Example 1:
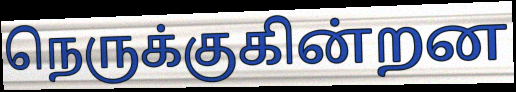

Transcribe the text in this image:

நெருக்குகின்றன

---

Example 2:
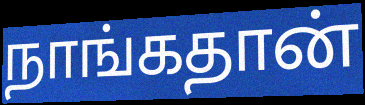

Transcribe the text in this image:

நாங்கதான்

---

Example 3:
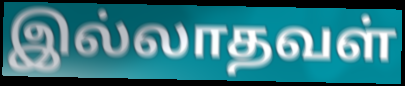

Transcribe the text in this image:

இல்லாதவள்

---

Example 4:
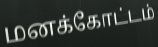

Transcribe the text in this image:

மனக்கோட்டம்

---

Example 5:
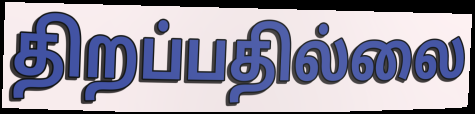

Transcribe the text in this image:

திறப்பதில்லை